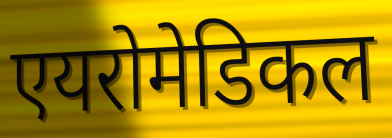
एयरोमेडिकल